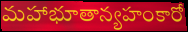
మహాభూతాన్యహంకారో